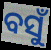
ବସୁଁ